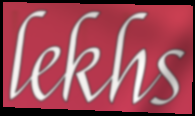
lekhs